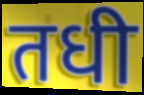
तधी